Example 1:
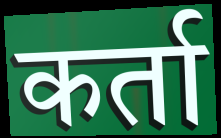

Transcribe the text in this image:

कर्ता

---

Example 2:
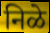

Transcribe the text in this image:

निळे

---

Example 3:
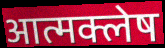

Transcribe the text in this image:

आत्मक्लेष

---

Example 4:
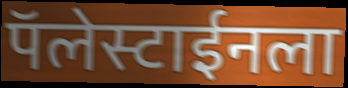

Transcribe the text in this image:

पॅलेस्टाईनला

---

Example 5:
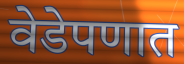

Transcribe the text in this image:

वेडेपणात